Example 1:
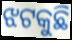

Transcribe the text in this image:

ଝଟକୁଛି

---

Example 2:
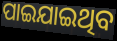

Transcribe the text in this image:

ପାଇଯାଇଥିବ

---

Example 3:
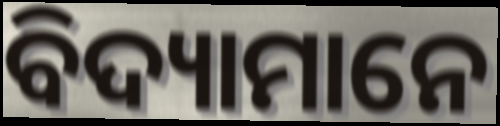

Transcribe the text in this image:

ବିଦ୍ୟାମାନେ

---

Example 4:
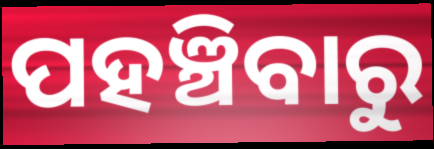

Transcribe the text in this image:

ପହଞ୍ଚିବାରୁ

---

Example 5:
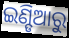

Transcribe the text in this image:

ଇଣ୍ଡିଆରୁ